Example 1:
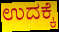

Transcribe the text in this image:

ಉದಕ್ಕೆ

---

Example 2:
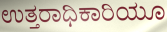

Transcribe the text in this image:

ಉತ್ತರಾಧಿಕಾರಿಯೂ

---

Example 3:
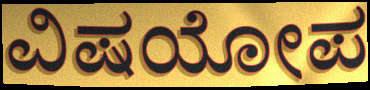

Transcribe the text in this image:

ವಿಷಯೋಪ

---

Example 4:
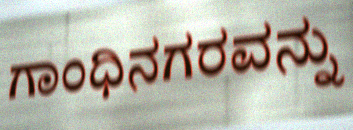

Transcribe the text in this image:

ಗಾಂಧಿನಗರವನ್ನು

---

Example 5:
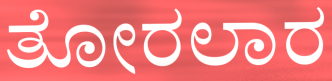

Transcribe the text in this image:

ತೋರಲಾರ